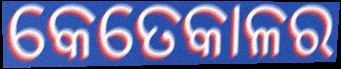
କେତେକାଳର